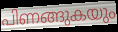
പിണങ്ങുകയും